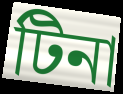
টিনা